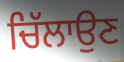
ਚਿੱਲਾਉਣ